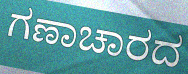
ಗಣಾಚಾರದ